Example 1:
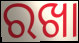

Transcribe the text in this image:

ରଖା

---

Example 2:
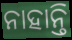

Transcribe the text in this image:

ନାହାନ୍ତି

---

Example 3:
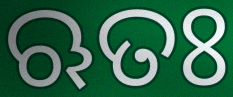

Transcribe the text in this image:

ଋତଃ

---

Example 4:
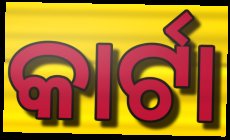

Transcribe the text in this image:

କାର୍ଟା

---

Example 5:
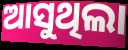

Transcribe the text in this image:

ଆସୁଥିଲା